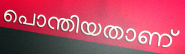
പൊന്തിയതാണ്